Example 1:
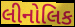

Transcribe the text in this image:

લીનોલિક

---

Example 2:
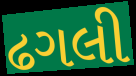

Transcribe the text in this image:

ઢગલી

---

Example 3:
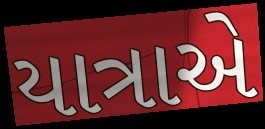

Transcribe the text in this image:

યાત્રાએ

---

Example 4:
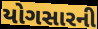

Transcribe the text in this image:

યોગસારની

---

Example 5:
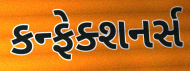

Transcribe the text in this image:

કન્ફેક્શનર્સ